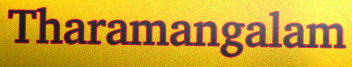
Tharamangalam